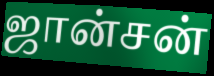
ஜான்சன்